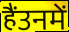
हैंउनमें